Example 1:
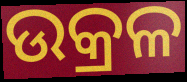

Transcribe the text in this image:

ଉକ୍ରଳ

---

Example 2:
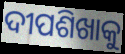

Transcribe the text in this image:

ଦୀପଶିଖାକୁ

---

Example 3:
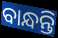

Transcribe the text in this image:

ବାନ୍ଧନ୍ତି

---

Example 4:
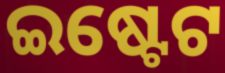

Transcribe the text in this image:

ଇଷ୍ଟେଟ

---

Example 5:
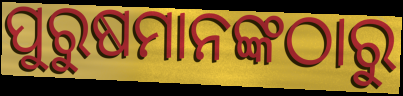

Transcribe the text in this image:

ପୁରୁଷମାନଙ୍କଠାରୁ